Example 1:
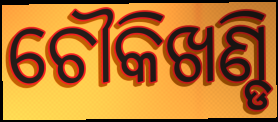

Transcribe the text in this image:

ଚୌକିଖଣ୍ଡି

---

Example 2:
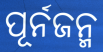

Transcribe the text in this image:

ପୂର୍ନଜନ୍ମ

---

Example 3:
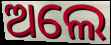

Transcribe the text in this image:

ଅଲେ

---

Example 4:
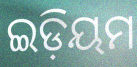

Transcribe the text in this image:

ଇଡ଼ିୟମ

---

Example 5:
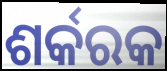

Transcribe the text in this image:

ଶର୍କରକ